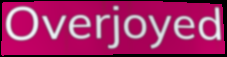
Overjoyed